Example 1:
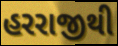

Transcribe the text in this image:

હરરાજીથી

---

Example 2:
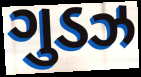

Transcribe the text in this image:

ગુડઝ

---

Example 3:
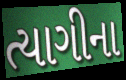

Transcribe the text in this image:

ત્યાગીના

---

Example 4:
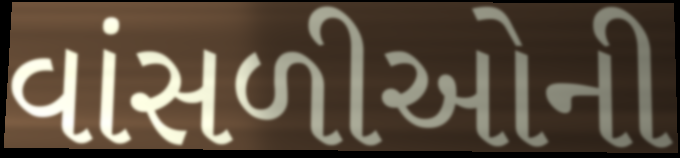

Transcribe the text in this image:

વાંસળીઓની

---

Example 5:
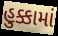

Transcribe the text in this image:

હુક્કામાં